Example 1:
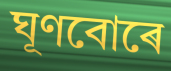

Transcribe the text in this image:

ঘূণবোৰে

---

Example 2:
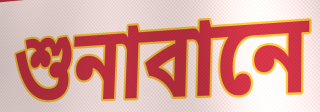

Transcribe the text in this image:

শুনাবানে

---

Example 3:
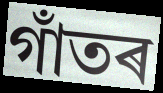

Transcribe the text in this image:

গাঁতৰ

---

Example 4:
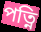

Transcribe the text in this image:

পত্নি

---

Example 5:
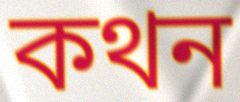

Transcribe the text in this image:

কথন